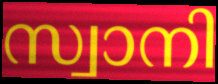
സ്വാനി